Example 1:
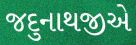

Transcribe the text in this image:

જદુનાથજીએ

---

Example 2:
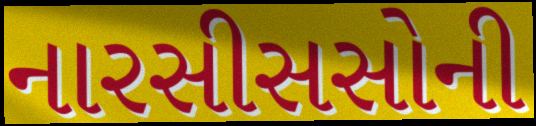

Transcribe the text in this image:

નારસીસસોની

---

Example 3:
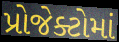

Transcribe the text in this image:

પ્રોજેક્ટોમાં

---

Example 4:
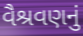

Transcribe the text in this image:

વૈશ્રવણનું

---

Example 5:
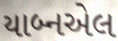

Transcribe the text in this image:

યાબ્નએલ